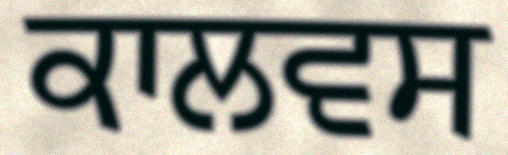
ਕਾਲਵਸ